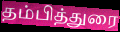
தம்பித்துரை